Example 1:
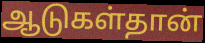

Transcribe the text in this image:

ஆடுகள்தான்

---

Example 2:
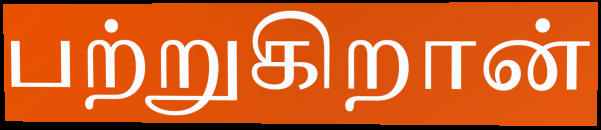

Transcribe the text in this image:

பற்றுகிறான்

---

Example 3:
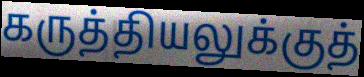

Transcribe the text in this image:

கருத்தியலுக்குத்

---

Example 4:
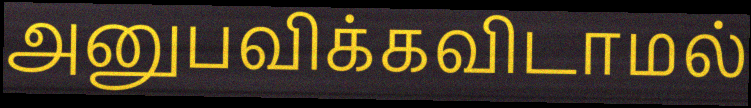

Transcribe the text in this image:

அனுபவிக்கவிடாமல்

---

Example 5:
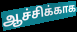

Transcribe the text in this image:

ஆச்சிக்காக